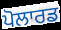
ਪੋਲਾਰਡ